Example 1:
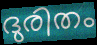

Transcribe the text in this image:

ദുരിതം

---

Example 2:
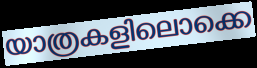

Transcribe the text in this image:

യാത്രകളിലൊക്കെ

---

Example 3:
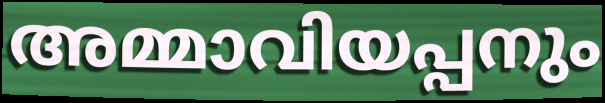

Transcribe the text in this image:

അമ്മാവിയപ്പനും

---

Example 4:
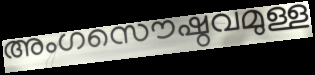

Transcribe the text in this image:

അംഗസൌഷ്ഠവമുള്ള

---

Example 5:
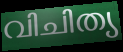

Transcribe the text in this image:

വിചിത്യ